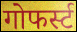
गोफर्स्ट